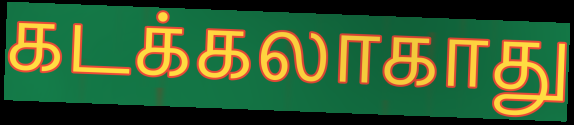
கடக்கலாகாது